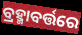
ବ୍ରହ୍ମାବର୍ତ୍ତରେ